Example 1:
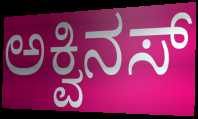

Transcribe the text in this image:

ಅಕ್ವಿನಸ್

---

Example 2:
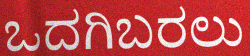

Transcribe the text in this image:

ಒದಗಿಬರಲು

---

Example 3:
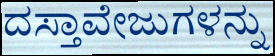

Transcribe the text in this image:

ದಸ್ತಾವೇಜುಗಳನ್ನು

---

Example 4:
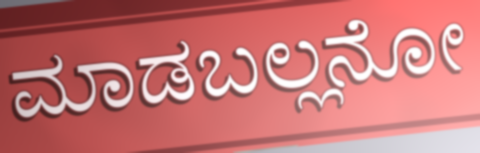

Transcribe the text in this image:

ಮಾಡಬಲ್ಲನೋ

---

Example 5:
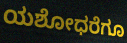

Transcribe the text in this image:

ಯಶೋಧರೆಗೂ